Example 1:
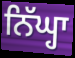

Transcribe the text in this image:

ਨਿੱਘ੍ਹਾ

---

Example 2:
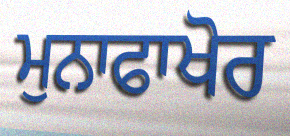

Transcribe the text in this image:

ਮੁਨਾਫਾਖੋਰ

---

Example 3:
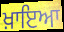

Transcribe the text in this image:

ਖ਼ਾਇਆ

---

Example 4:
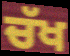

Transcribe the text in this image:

ਚੱਖ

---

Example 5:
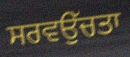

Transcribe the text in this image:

ਸਰਵਉੱਚਤਾ